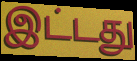
இட்டது